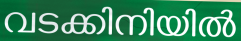
വടക്കിനിയിൽ